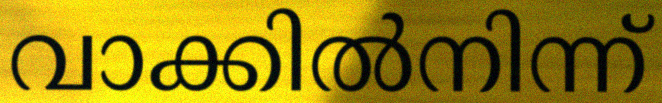
വാക്കിൽനിന്ന്